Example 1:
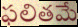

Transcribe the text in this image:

ఫలితమే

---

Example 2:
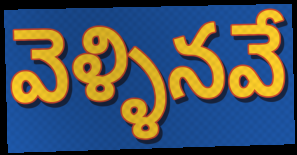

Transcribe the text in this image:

వెళ్ళినవే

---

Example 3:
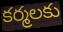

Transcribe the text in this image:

కర్మలకు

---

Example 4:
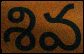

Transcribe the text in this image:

శివ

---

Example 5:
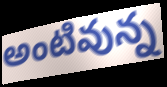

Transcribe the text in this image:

అంటివున్న